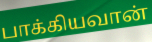
பாக்கியவான்